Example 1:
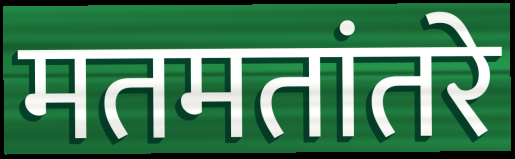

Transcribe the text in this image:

मतमतांतरे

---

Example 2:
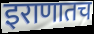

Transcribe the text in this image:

इराणातच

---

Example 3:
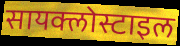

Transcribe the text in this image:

सायक्लोस्टाइल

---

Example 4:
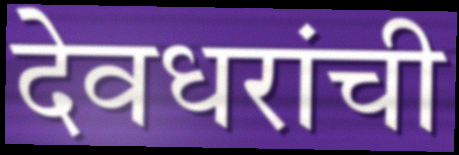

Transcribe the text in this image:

देवधरांची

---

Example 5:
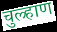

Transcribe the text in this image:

चुल्हाण